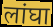
लांघा